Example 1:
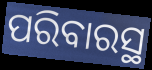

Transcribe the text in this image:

ପରିବାରସ୍ଥ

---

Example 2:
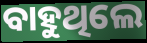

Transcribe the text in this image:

ବାହୁଥିଲେ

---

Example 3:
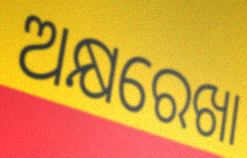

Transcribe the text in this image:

ଅକ୍ଷରେଖା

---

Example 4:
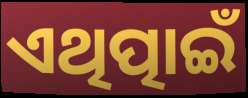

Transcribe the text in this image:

ଏଥିତ୍ପାଇଁ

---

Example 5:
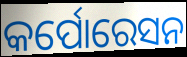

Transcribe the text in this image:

କର୍ପୋରେସନ